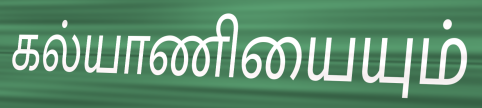
கல்யாணியையும்